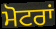
ਮੋਟਰਾਂ